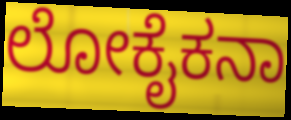
ಲೋಕೈಕನಾ